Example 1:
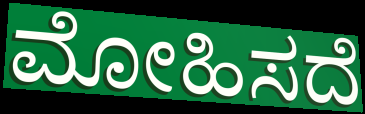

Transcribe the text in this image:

ಮೋಹಿಸದೆ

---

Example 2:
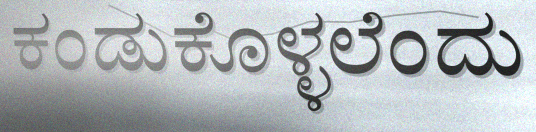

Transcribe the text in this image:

ಕಂಡುಕೊಳ್ಳಲೆಂದು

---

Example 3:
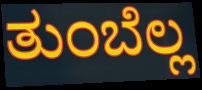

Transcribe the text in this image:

ತುಂಬೆಲ್ಲ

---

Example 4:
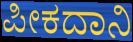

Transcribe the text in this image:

ಪೀಕದಾನಿ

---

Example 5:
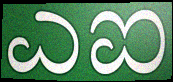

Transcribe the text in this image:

ಎಐ